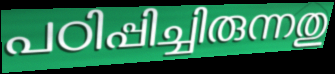
പഠിപ്പിച്ചിരുന്നതു